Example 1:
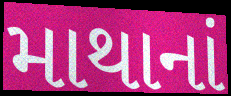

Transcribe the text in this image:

માથાનાં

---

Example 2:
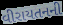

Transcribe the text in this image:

વીરાયતનની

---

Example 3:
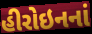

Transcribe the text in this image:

હીરોઇનનાં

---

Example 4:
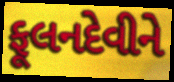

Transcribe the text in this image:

ફૂલનદેવીને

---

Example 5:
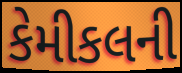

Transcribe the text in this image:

કેમીકલની